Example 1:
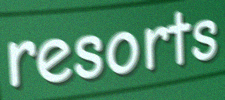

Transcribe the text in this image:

resorts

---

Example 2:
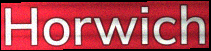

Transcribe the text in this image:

Horwich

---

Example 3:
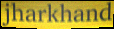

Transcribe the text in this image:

jharkhand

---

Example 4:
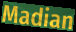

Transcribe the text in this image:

Madian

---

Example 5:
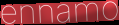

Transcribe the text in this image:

ennamo